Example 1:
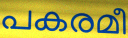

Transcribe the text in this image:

പകരമീ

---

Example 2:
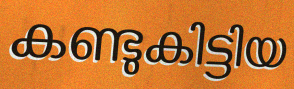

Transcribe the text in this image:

കണ്ടുകിട്ടിയ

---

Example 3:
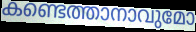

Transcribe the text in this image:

കണ്ടെത്താനാവുമോ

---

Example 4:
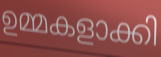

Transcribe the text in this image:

ഉമ്മകളാക്കി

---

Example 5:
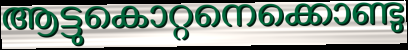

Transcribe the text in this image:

ആട്ടുകൊറ്റനെക്കൊണ്ടു